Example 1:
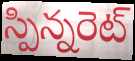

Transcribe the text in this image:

స్పిన్నరెట్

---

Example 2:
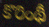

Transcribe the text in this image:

కొరింథీ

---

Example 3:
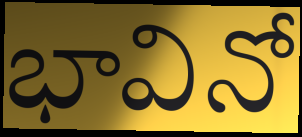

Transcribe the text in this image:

భావినో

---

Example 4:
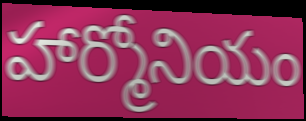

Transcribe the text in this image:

హార్మోనియం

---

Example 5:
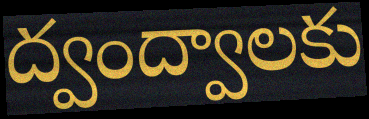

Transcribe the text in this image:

ద్వంద్వాలకు